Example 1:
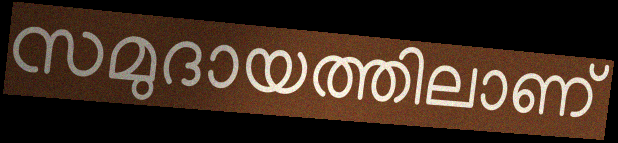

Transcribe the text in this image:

സമുദായത്തിലാണ്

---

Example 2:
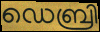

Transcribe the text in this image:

ഡെബ്രി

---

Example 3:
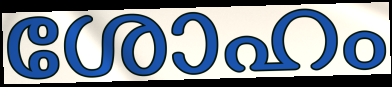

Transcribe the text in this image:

ശോഹം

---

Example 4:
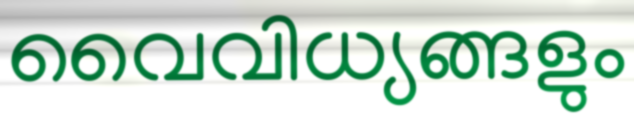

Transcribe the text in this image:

വൈവിധ്യങ്ങളും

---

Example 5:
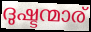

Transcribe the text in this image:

ദുഷ്ടന്മാര്